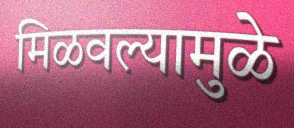
मिळवल्यामुळे